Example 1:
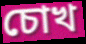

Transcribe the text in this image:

চোখ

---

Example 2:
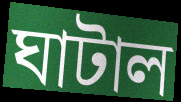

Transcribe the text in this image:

ঘাটাল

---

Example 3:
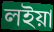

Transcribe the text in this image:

লইয়া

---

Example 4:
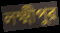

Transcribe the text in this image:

লক্ষ্মীপুর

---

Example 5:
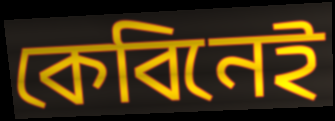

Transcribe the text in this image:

কেবিনেই